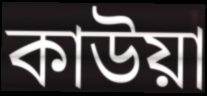
কাউয়া